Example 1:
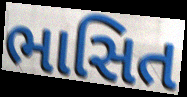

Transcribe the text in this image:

ભાસિત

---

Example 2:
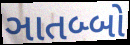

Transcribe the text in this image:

ઞાતબ્બો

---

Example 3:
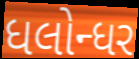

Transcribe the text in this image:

ધલોન્ધર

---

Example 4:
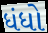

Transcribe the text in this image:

ધંધો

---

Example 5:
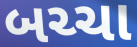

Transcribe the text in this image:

બચ્ચા